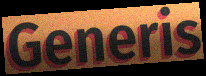
Generis